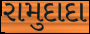
રામુદાદા